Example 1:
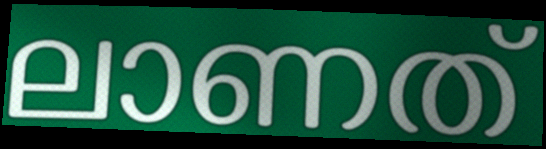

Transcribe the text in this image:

ലാണത്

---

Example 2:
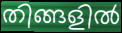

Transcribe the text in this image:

തിങ്ങളിൽ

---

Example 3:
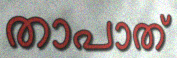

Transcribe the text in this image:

താപാത്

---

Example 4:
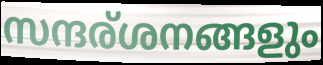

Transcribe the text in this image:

സന്ദര്ശനങ്ങളും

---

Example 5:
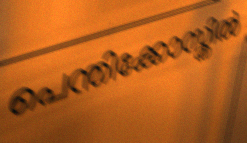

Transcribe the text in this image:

പെന്തിക്കോസ്തിൽ